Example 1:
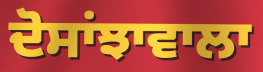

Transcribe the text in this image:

ਦੋਸਾਂਝਾਵਾਲਾ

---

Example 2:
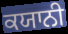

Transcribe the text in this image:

ਕਯਾਨੀ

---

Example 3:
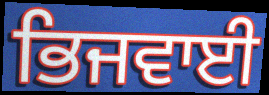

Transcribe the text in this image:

ਭਿਜਵਾਈ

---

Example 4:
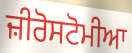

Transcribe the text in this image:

ਜ਼ੀਰੋਸਟੋਮੀਆ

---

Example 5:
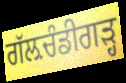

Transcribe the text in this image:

ਗੱਲ਼ਚੰਡੀਗੜ੍ਹ